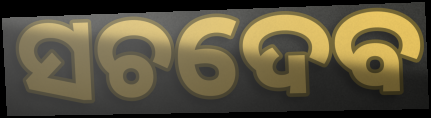
ସଚଦେବ